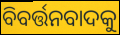
ବିବର୍ତ୍ତନବାଦକୁ